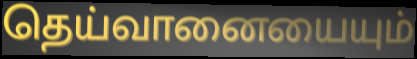
தெய்வானையையும்